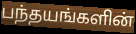
பந்தயங்களின்